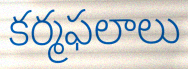
కర్మఫలాలు